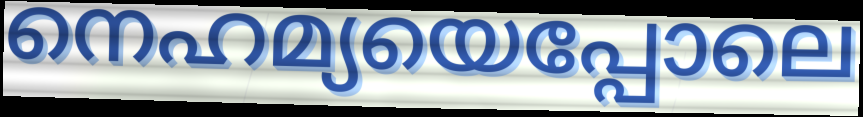
നെഹമ്യയെപ്പോലെ